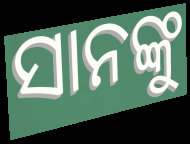
ସାନଙ୍କୁ